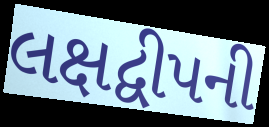
લક્ષદ્વીપની